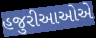
હજુરીઆઓએ